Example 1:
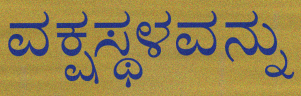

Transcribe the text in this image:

ವಕ್ಷಸ್ಥಳವನ್ನು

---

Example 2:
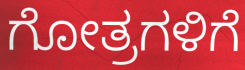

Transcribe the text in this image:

ಗೋತ್ರಗಳಿಗೆ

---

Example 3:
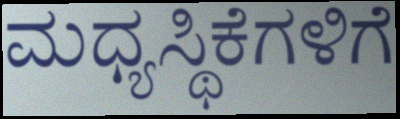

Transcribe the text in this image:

ಮಧ್ಯಸ್ಥಿಕೆಗಳಿಗೆ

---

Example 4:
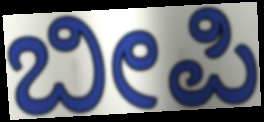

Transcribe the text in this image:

ಬೀಪಿ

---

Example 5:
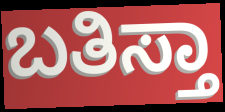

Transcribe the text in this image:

ಬತಿಸ್ತಾ